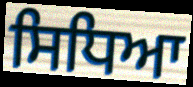
ਸਿਧਿਆ